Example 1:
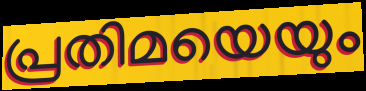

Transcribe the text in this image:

പ്രതിമയെയും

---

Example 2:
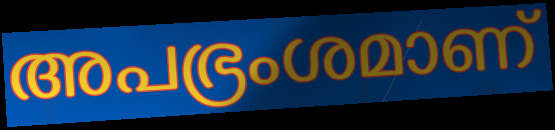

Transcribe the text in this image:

അപഭ്രംശമാണ്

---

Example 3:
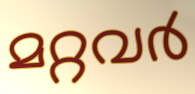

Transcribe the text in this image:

മറ്റവർ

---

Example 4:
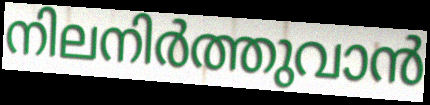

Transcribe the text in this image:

നിലനിർത്തുവാൻ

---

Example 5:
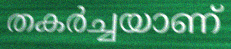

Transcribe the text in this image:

തകർച്ചയാണ്